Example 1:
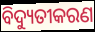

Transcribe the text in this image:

ବିଦ୍ୟୁତୀକରଣ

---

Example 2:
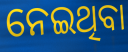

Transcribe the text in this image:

ନେଇଥିବା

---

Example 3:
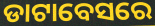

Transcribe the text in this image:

ଡାଟାବେସରେ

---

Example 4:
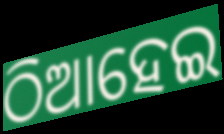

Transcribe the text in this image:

ଠିଆହେଇ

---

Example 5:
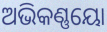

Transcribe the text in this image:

ଅଭିକଣ୍ଣୟୋ